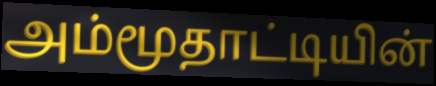
அம்மூதாட்டியின்